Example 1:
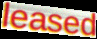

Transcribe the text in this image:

leased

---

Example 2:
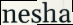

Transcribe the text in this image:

nesha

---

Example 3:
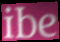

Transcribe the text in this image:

ibe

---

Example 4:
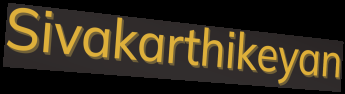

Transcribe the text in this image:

Sivakarthikeyan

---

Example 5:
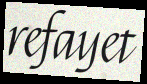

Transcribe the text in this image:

refayet